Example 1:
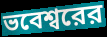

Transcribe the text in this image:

ভবেশ্বরের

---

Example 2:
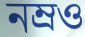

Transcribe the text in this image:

নম্রও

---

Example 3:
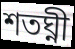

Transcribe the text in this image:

শতঘ্নী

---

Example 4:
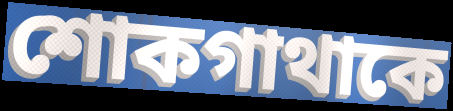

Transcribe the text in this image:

শোকগাথাকে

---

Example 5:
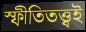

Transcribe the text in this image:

স্ফীতিতত্ত্বই